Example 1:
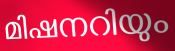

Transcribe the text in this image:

മിഷനറിയും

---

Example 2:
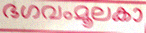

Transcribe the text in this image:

ഭഗവംമൂലകാ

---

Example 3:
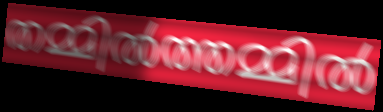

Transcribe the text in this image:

തമ്മിൽത്തമ്മിൽ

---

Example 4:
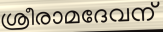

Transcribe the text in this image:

ശ്രീരാമദേവന്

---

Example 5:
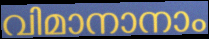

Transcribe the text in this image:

വിമാനാനാം